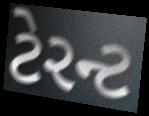
ટેરન્ટ